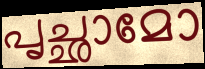
പൃച്ഛാമോ